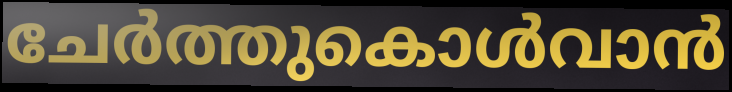
ചേർത്തുകൊൾവാൻ